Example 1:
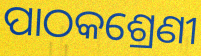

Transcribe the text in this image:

ପାଠକଶ୍ରେଣୀ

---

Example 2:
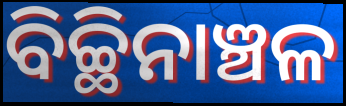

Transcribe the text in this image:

ବିଚ୍ଛିନାଞ୍ଚଳ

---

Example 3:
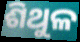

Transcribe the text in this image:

ଶିଥୁଳ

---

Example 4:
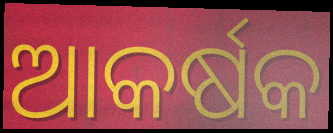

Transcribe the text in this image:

ଆକର୍ଷକ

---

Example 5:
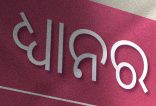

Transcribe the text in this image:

ଧ୍ୟାନର